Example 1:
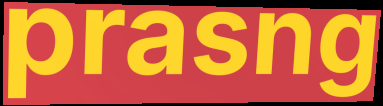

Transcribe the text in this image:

prasng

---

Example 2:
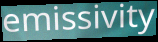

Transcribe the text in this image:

emissivity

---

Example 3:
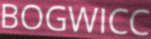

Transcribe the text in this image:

BOGWICC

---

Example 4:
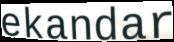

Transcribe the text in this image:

ekandar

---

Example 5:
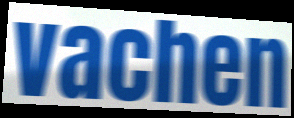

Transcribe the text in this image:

vachen